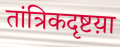
तांत्रिकदृष्टय़ा